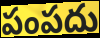
పంపదు